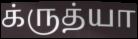
க்ருத்யா